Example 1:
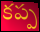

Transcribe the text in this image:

కప్ప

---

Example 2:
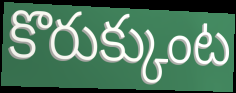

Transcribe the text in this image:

కొరుక్కుంట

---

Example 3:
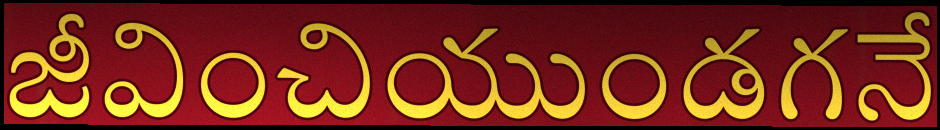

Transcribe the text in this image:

జీవించియుండగనే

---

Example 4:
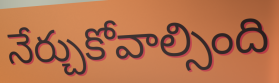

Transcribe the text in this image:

నేర్చుకోవాల్సింది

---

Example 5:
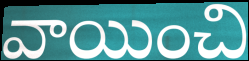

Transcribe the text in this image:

వాయించి